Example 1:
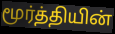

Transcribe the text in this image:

மூர்த்தியின்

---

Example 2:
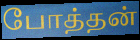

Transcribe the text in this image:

போத்தன்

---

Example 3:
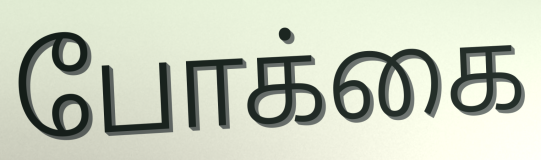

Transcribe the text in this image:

போக்கை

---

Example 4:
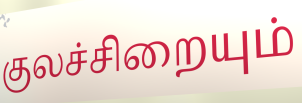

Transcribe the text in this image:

குலச்சிறையும்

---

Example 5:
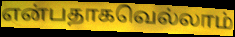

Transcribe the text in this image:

என்பதாகவெல்லாம்